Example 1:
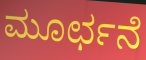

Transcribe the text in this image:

ಮೂರ್ಛನೆ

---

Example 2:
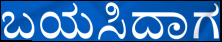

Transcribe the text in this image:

ಬಯಸಿದಾಗ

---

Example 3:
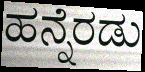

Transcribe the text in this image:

ಹನ್ನೆರಡು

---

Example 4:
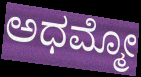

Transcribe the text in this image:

ಅಧಮ್ಮೋ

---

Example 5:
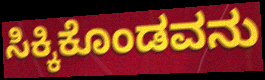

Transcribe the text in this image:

ಸಿಕ್ಕಿಕೊಂಡವನು